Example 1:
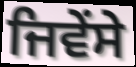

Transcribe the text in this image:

ਜਿਵੇਂਸੇ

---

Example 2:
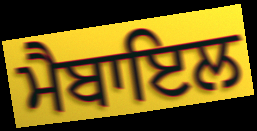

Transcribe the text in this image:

ਮੈਬਾਇਲ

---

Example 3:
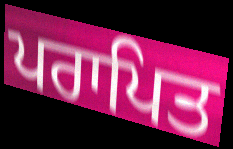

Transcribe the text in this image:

ਪਰਾਪਿਤ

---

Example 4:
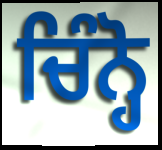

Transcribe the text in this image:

ਚਿੰਨ੍ਹੋ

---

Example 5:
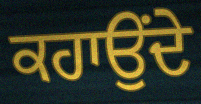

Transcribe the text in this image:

ਕਹਾਉਂਦੇ